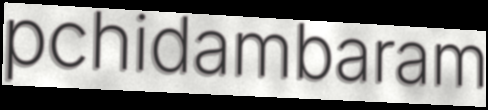
pchidambaram